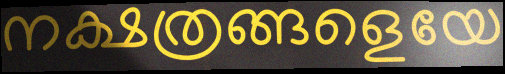
നക്ഷത്രങ്ങളെയേ